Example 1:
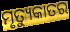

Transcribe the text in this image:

ମୃତ୍ୟୁକାତର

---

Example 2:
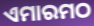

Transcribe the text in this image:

ଏମାରମଠ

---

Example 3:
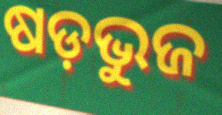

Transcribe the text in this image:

ଷଡ଼ଭୁଜ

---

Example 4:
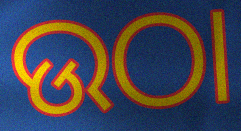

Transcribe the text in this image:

ଉଠା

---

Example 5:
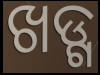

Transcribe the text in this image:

ଖଡ୍ଗ